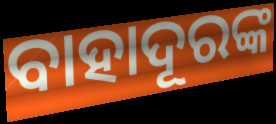
ବାହାଦୂରଙ୍କ